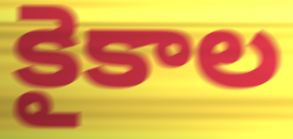
కైకాల